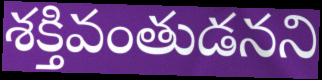
శక్తివంతుడనని